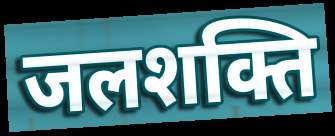
जलशक्ति